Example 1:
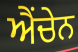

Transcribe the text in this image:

ਐਂਚੇਨ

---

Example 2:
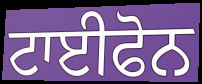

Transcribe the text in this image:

ਟਾਈਫੋਨ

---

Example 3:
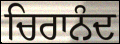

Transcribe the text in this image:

ਚਿਰਾਨੰਦ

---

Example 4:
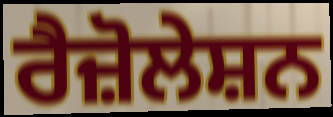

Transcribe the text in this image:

ਰੈਜ਼ੋਲੇਸ਼ਨ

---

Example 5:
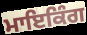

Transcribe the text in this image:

ਮਾਇਕਿੰਗ